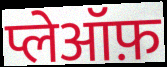
प्लेऑफ़